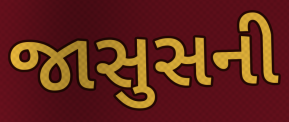
જાસુસની